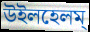
উইলহেলম্